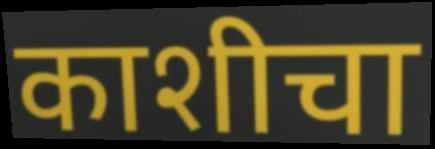
काशीचा